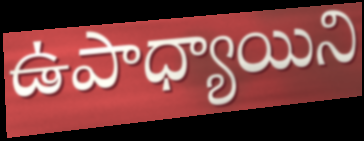
ఉపాధ్యాయిని